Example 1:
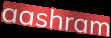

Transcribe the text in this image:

aashram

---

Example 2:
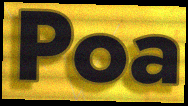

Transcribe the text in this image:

Poa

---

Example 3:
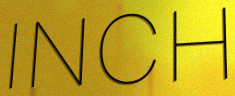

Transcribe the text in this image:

INCH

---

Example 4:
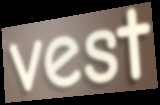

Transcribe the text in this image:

vest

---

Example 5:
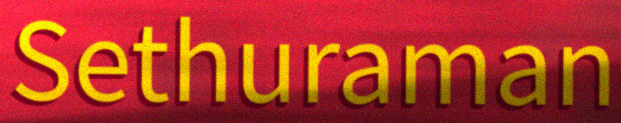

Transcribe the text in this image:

Sethuraman